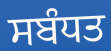
ਸਬੰਧਤ